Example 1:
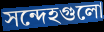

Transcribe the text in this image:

সন্দেহগুলো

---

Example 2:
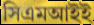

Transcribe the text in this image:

সিএমআইই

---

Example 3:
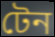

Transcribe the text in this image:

টেন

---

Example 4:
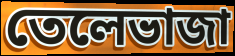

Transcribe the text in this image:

তেলেভাজা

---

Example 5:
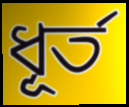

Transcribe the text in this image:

ধূর্ত